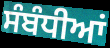
ਸੰਬੰਧੀਆਂ